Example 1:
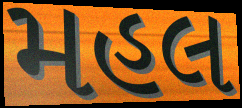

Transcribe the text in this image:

મહલ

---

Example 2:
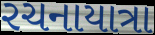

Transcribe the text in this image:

રચનાયાત્રા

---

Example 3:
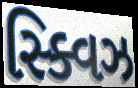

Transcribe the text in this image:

સ્ક્વિઝ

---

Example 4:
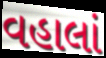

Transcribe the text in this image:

વહાલાં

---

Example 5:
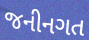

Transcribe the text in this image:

જનીનગત